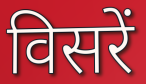
विसरें